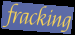
fracking